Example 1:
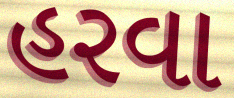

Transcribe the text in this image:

હરવા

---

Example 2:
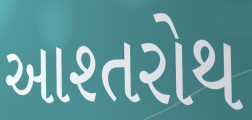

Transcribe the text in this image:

આશ્તરોથ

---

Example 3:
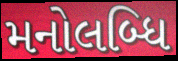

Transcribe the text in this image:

મનોલબ્ધિ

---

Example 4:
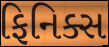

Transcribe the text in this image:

ફિનિક્સ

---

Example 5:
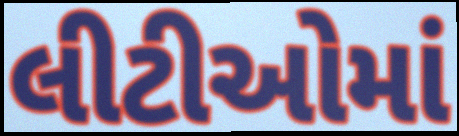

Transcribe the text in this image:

લીટીઓમાં